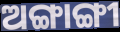
ଅଙ୍ଗାଙ୍ଗୀ